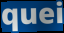
quei